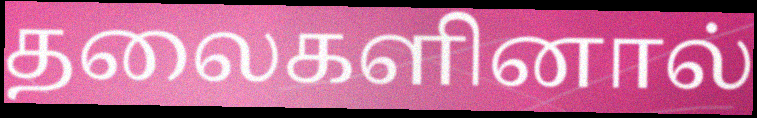
தலைகளினால்